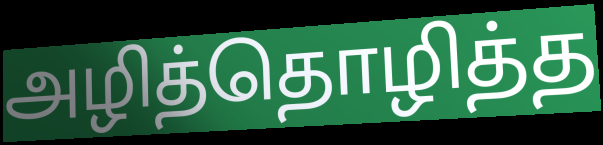
அழித்தொழித்த